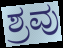
ಶ್ರವು